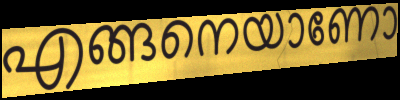
എങ്ങനെയാണോ